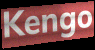
Kengo